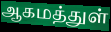
ஆகமத்துள்